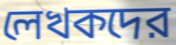
লেখকদের